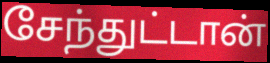
சேந்துட்டான்